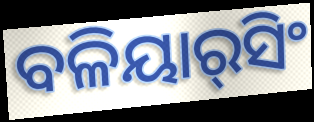
ବଳିୟାର୍‌ସିଂ